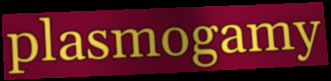
plasmogamy